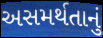
અસમર્થતાનું